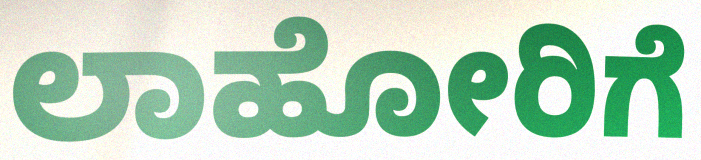
ಲಾಹೋರಿಗೆ